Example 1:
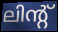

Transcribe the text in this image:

ലിന്റ്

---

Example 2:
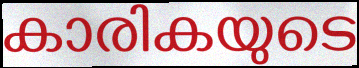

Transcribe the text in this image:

കാരികയുടെ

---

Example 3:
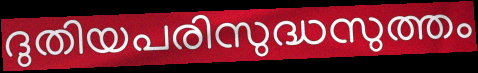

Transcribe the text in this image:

ദുതിയപരിസുദ്ധസുത്തം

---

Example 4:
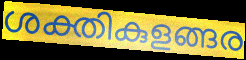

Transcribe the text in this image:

ശക്തികുളങ്ങര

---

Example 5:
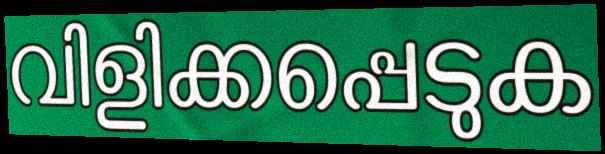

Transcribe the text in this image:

വിളിക്കപ്പെടുക